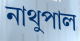
নাথুপাল